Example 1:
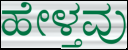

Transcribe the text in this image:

ಹೇಳ್ತವು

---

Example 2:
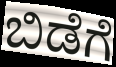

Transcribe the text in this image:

ಬಿಡೆಗೆ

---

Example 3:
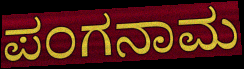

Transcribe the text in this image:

ಪಂಗನಾಮ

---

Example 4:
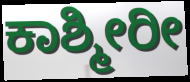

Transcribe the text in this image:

ಕಾಶ್ಮೀರೀ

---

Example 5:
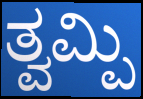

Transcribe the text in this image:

ತ್ವಮ್ಪಿ